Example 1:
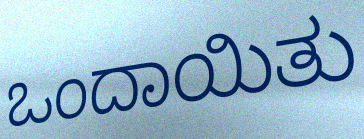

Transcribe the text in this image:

ಒಂದಾಯಿತು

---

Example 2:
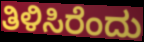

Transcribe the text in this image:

ತಿಳಿಸಿರೆಂದು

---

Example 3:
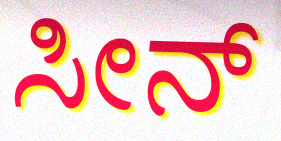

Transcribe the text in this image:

ಸೀನ್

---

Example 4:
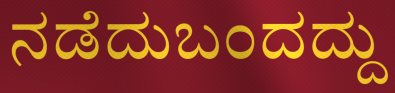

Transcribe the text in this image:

ನಡೆದುಬಂದದ್ದು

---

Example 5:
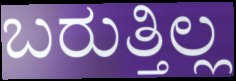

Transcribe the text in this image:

ಬರುತ್ತಿಲ್ಲ